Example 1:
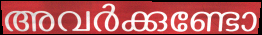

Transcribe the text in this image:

അവർക്കുണ്ടോ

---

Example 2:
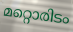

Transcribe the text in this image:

മറ്റൊരിടം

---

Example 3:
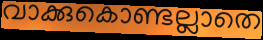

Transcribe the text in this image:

വാക്കുകൊണ്ടല്ലാതെ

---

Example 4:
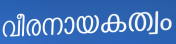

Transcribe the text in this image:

വീരനായകത്വം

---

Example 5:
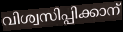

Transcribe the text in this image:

വിശ്വസിപ്പിക്കാന്